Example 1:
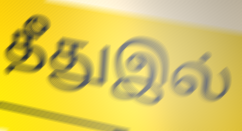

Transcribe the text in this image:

தீதுஇல்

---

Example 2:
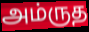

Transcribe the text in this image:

அம்ருத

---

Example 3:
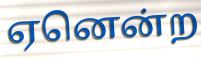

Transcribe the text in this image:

ஏனென்ற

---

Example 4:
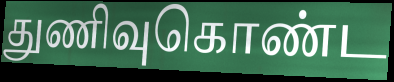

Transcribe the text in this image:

துணிவுகொண்ட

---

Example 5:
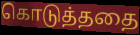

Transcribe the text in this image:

கொடுத்ததை